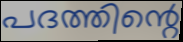
പദത്തിന്റെ